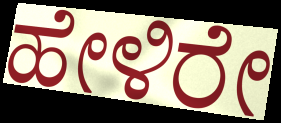
ಹೇಳಿರೇ